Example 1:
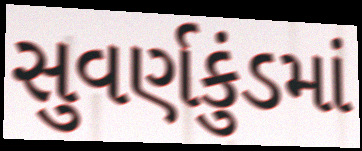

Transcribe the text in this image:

સુવર્ણકુંડમાં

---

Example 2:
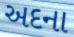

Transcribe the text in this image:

અદના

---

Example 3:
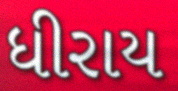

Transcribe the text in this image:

ધીરાય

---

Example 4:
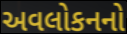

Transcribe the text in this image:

અવલોકનનો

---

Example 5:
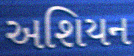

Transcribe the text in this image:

અશિયન